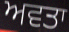
ਅਵਤਾ